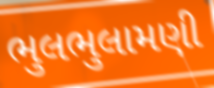
ભુલભુલામણી